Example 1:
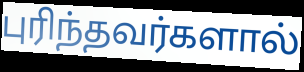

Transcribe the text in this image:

புரிந்தவர்களால்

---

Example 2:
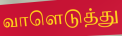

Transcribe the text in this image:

வாளெடுத்து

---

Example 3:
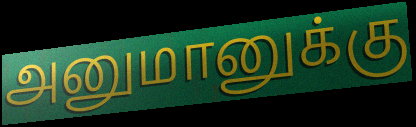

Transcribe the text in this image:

அனுமானுக்கு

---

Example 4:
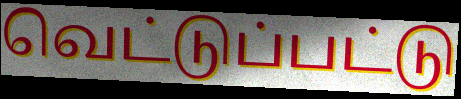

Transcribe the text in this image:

வெட்டுப்பட்டு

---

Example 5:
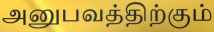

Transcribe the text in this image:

அனுபவத்திற்கும்